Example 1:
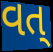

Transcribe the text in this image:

વત્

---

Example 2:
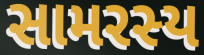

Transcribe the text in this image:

સામરસ્ય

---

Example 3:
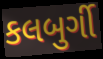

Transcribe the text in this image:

કલબુર્ગી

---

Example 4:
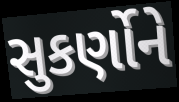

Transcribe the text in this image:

સુકર્ણોને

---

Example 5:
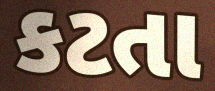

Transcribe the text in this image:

કટતા